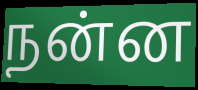
நன்ன